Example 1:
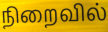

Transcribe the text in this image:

நிறைவில்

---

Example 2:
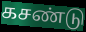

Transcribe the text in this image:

கசண்டு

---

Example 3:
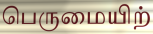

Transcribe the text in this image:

பெருமையிற்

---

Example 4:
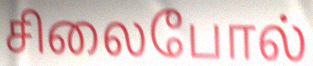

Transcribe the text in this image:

சிலைபோல்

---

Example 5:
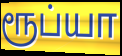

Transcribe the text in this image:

ரூப்யா